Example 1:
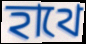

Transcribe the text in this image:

হাথে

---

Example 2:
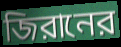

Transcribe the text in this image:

জিরানের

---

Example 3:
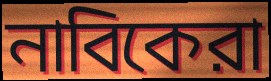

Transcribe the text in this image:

নাবিকেরা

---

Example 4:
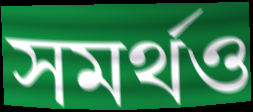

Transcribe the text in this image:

সমর্থও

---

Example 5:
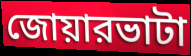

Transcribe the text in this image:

জোয়ারভাটা